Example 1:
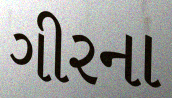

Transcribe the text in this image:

ગીરના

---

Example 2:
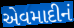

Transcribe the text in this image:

એવમાદીનં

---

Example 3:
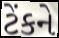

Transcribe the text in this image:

ટેંકને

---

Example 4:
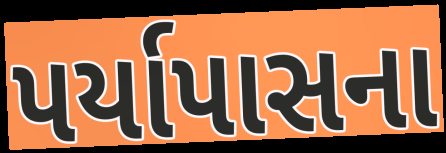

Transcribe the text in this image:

પર્યાપાસના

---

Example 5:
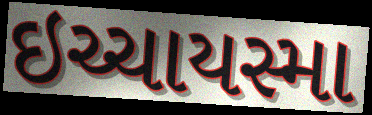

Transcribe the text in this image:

ઇચ્ચાયસ્મા